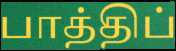
பாத்திப்